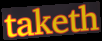
taketh